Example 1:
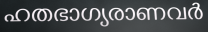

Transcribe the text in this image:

ഹതഭാഗ്യരാണവർ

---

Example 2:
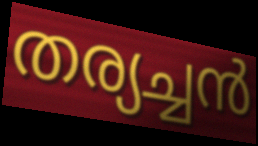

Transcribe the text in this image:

തര്യച്ചൻ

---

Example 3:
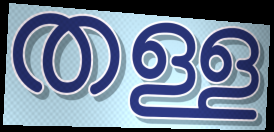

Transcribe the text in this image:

തള്ള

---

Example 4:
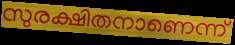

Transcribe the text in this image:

സുരക്ഷിതനാണെന്ന്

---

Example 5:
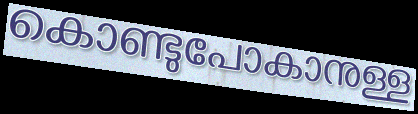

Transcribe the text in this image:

കൊണ്ടുപോകാനുള്ള